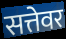
सत्तेवर